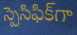
స్పెసిఫిక్‌గా